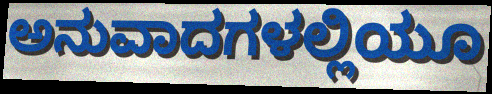
ಅನುವಾದಗಳಲ್ಲಿಯೂ